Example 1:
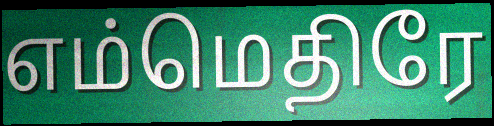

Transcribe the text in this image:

எம்மெதிரே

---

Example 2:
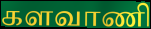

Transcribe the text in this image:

களவாணி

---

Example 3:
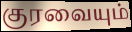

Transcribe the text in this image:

குரவையும்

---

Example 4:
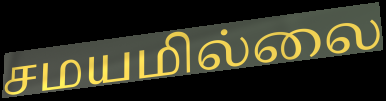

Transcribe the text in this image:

சமயமில்லை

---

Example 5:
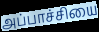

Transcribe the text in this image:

அப்பாச்சியை